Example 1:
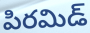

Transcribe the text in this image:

పిరమిడ్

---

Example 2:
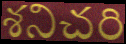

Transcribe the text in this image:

శనిచరి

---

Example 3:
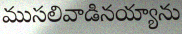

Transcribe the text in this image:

ముసలివాడినయ్యాను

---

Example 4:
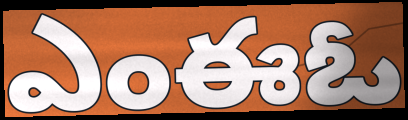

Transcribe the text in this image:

ఎంఈఓ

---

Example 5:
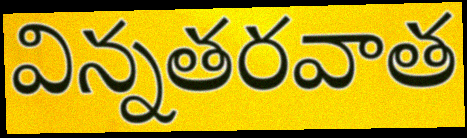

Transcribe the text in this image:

విన్నతరవాత